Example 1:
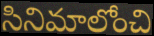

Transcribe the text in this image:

సినిమాలోంచి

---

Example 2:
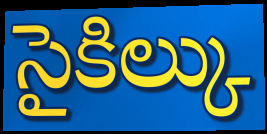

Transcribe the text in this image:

సైకిల్కు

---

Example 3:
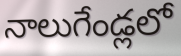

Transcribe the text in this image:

నాలుగేండ్లలో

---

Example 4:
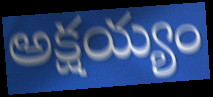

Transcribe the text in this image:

అక్షయ్యం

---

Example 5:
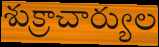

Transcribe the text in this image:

శుక్రాచార్యుల